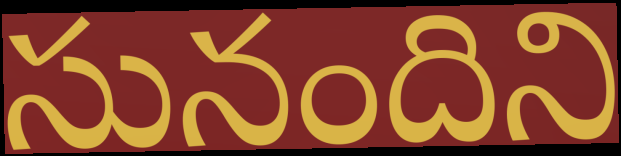
సునందిని